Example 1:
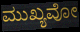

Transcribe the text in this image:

ಮುಖ್ಯವೋ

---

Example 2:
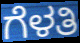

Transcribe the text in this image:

ಗೆಳತಿ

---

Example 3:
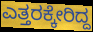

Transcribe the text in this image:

ಎತ್ತರಕ್ಕೇರಿದ್ದ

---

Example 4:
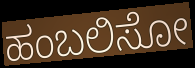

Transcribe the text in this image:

ಹಂಬಲಿಸೋ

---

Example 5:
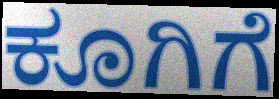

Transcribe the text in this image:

ಕೂಗಿಗೆ